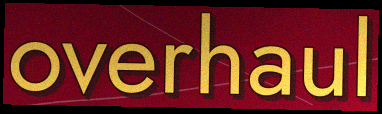
overhaul